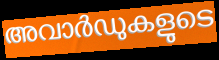
അവാർഡുകളുടെ